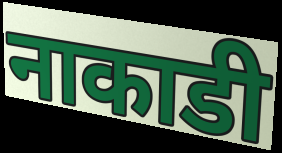
नाकाडी